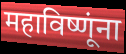
महाविष्णूंना